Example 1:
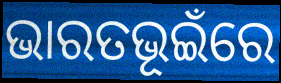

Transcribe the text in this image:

ଭାରତଭୂଇଁରେ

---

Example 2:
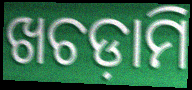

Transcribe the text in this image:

ଖଚଡ଼ାମି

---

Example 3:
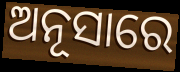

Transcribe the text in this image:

ଅନୂସାରେ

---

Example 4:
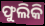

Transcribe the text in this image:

ଫୁଲିକି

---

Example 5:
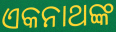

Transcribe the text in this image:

ଏକନାଥଙ୍କ